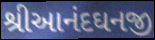
શ્રીઆનંદઘનજી